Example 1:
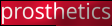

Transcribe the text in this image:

prosthetics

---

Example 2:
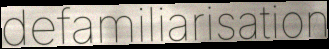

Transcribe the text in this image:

defamiliarisation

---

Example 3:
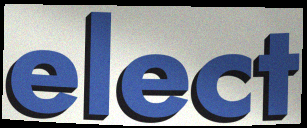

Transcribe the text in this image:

elect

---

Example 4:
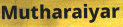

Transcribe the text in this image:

Mutharaiyar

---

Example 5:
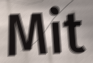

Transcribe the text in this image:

Mit